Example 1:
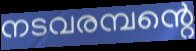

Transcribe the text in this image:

നടവരമ്പന്റെ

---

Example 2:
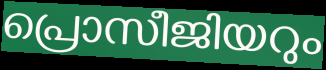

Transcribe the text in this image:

പ്രൊസീജിയറും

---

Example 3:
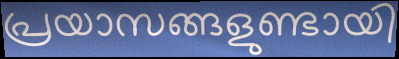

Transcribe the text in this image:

പ്രയാസങ്ങളുണ്ടായി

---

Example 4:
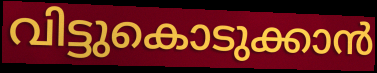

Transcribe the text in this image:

വിട്ടുകൊടുക്കാൻ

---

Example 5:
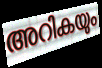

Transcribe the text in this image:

അറികയും